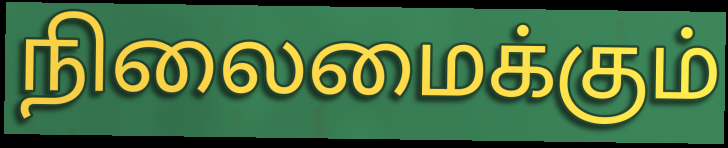
நிலைமைக்கும்